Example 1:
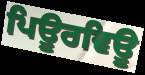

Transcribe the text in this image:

ਪਿਊਰਵਿਊ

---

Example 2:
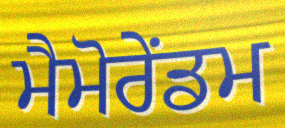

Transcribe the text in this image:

ਮੈਮੋਰੇਂਡਮ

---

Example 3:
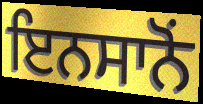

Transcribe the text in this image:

ਇਨਸਾਨੋਂ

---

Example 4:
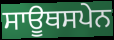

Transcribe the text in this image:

ਸਾਊਥਸਪੇਨ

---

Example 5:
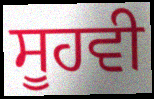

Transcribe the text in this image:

ਸੂਹਵੀ